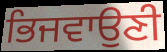
ਭਿਜਵਾਉਣੀ